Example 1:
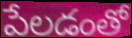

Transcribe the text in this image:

పేలడంతో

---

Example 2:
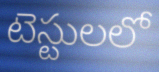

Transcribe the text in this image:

టెస్టులలో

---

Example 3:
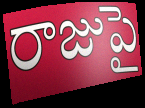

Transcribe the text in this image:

రాజుపై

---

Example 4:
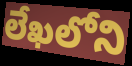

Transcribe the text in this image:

లేఖలోని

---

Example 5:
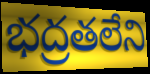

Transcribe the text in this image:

భద్రతలేని